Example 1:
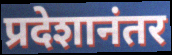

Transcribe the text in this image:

प्रदेशानंतर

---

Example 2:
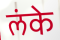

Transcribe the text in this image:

लंके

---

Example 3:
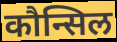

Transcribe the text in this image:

कौन्सिल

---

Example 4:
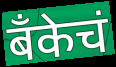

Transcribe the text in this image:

बॅंकेचं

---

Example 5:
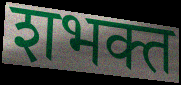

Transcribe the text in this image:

शभक्त